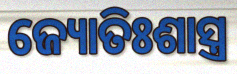
ଜ୍ୟୋତିଃଶାସ୍ତ୍ର